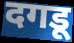
दगडू